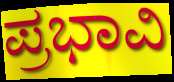
ಪ್ರಭಾವಿ